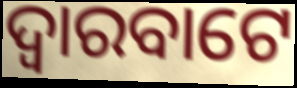
ଦ୍ୱାରବାଟେ